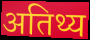
अतिथ्य